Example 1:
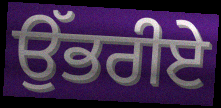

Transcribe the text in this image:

ਉੱਭਰੀਏ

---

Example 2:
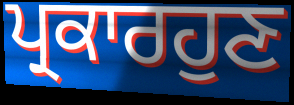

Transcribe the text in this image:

ਪ੍ਰਕਾਰਹੁਣ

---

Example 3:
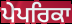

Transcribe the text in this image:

ਪੇਪਰਿਕਾ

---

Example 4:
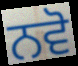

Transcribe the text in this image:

ਨਵੋ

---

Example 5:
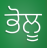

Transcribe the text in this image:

ਭੋਲੂ